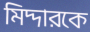
মিদ্দারকে